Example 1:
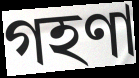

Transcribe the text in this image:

গহণা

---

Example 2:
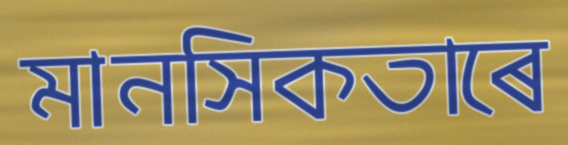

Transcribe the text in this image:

মানসিকতাৰে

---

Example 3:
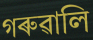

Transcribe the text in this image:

গৰুৱালি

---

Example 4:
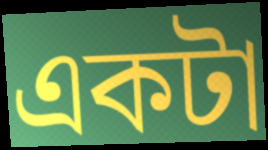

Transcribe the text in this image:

একটা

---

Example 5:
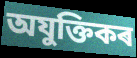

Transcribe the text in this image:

অযুক্তিকৰ